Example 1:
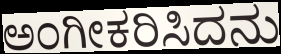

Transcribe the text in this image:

ಅಂಗೀಕರಿಸಿದನು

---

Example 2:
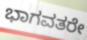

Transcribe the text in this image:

ಭಾಗವತರೇ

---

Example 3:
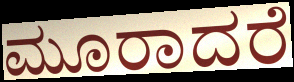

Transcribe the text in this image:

ಮೂರಾದರೆ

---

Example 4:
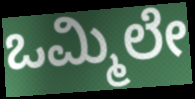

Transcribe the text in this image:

ಒಮ್ಮಿಲೇ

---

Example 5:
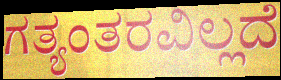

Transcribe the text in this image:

ಗತ್ಯಂತರವಿಲ್ಲದೆ